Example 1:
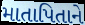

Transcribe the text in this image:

માતાપિતાને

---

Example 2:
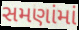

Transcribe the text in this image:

સમણાંમાં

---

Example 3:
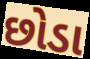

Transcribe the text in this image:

છોડા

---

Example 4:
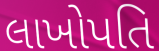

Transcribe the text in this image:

લાખોપતિ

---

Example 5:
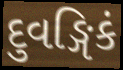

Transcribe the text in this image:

દુવઙ્ગિકં